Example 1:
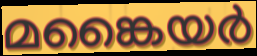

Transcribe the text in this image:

മങ്കൈയർ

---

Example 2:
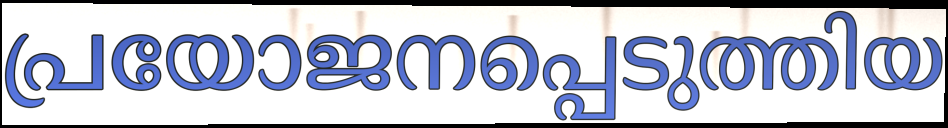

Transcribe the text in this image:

പ്രയോജനപ്പെടുത്തിയ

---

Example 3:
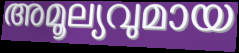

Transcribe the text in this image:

അമൂല്യവുമായ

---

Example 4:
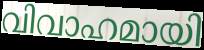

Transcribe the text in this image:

വിവാഹമായി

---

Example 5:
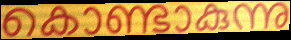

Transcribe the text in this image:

കൊണ്ടാകുന്നു